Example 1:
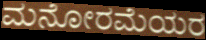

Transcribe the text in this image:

ಮನೋರಮೆಯರ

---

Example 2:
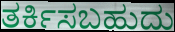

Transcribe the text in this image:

ತರ್ಕಿಸಬಹುದು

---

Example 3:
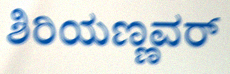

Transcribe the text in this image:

ಶಿರಿಯಣ್ಣವರ್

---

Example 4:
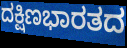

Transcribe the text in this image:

ದಕ್ಷಿಣಭಾರತದ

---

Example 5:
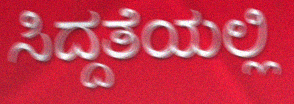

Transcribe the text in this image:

ಸಿದ್ದತೆಯಲ್ಲಿ